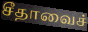
சீதாவைச்